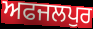
ਅਫਜਲਪੁਰ